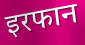
इरफान